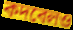
কদবেলও